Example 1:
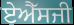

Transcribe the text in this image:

ਏਐੱਸਜੀ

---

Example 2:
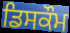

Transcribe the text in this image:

ਡਿਸਕੌਮ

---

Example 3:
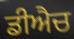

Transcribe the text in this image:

ਡੀਐਚ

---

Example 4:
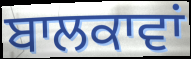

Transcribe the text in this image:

ਬਾਲਕਾਵਾਂ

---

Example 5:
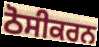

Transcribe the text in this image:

ਠੋਸੀਕਰਨ